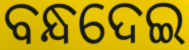
ବନ୍ଧଦେଇ